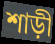
শাড়ী